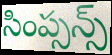
సింప్సన్స్